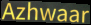
Azhwaar